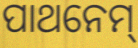
ପାଥନେମ୍